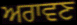
ਅਰਾਵਣ